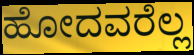
ಹೋದವರೆಲ್ಲ